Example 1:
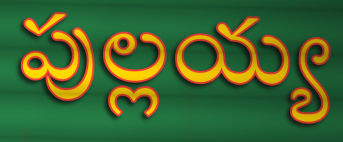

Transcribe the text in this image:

పుల్లయ్య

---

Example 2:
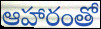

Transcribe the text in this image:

ఆహారంతో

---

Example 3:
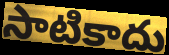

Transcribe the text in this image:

సాటికాదు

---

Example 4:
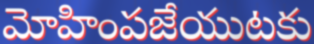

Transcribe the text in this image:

మోహింపజేయుటకు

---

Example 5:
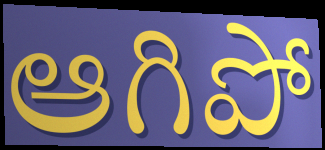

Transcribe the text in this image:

ఆగిపో